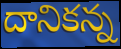
దానికన్న